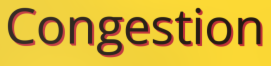
Congestion